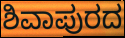
ಶಿವಾಪುರದ